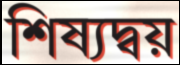
শিষ্যদ্বয়